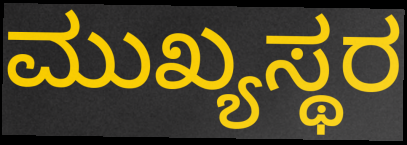
ಮುಖ್ಯಸ್ಥರ